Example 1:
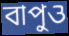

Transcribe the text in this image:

বাপুও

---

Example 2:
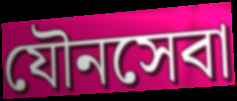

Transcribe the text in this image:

যৌনসেবা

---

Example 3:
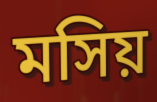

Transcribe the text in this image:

মসিয়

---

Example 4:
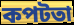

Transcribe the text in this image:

কপটতা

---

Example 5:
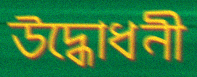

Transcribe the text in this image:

উদ্ধোধনী